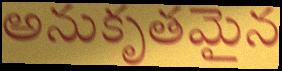
అనుకృతమైన